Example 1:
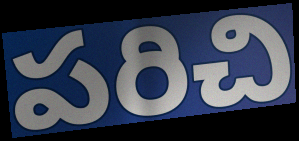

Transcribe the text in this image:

పరిచి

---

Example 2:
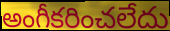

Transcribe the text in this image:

అంగీకరించలేదు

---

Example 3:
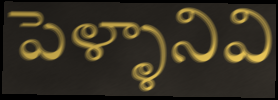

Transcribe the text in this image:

పెళ్ళానివి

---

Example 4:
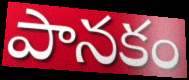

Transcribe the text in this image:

పానకం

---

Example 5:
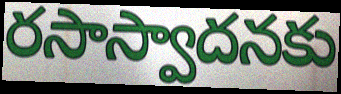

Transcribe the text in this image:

రసాస్వాదనకు